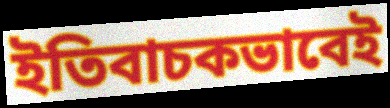
ইতিবাচকভাবেই